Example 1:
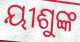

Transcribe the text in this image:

ୟୀଶୁଙ୍କ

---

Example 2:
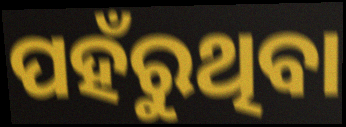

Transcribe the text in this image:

ପହଁରୁଥିବା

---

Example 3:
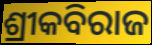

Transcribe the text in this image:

ଶ୍ରୀକବିରାଜ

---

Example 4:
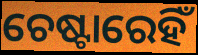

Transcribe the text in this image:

ଚେଷ୍ଟାରେହିଁ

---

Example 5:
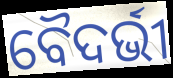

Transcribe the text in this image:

ବୈଦର୍ଭୀ